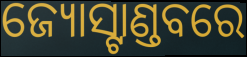
ଜ୍ୟୋସ୍ଟାଣ୍ଡବରେ